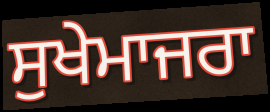
ਸੁਖੇਮਾਜਰਾ